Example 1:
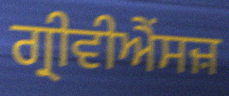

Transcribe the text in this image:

ਗ੍ਰੀਵੀਐਂਸਜ਼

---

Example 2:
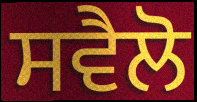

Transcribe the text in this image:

ਸਵੈਲੋ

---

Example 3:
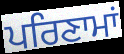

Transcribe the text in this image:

ਪਰਿਣਾਮਾਂ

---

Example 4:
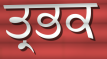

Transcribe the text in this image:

ਤ੍ਰਭਕ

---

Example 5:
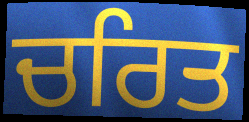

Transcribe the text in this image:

ਚਰਿਤ